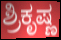
ಶ್ರಿಕೃಷ್ಣ